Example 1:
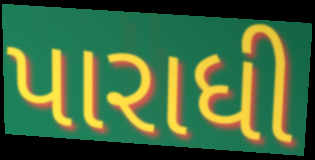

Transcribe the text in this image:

પારાધી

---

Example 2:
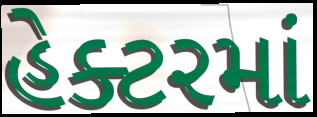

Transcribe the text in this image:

હેક્ટરમાં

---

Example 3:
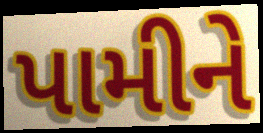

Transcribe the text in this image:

પામીને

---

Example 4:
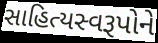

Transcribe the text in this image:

સાહિત્યસ્વરૂપોને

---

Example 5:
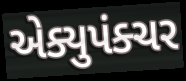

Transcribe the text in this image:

એક્યુપંક્ચર